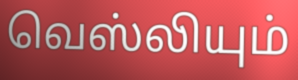
வெஸ்லியும்